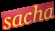
sacha